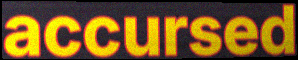
accursed